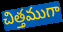
చిత్తముగా